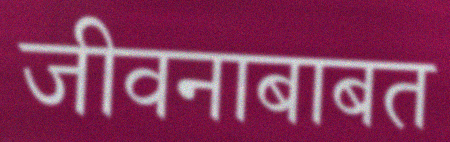
जीवनाबाबत